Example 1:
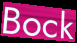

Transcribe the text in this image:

Bock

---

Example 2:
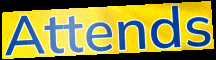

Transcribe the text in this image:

Attends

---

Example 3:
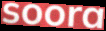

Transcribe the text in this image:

soora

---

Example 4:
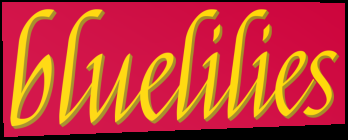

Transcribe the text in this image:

bluelilies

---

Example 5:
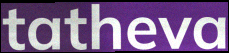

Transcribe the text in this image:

tatheva